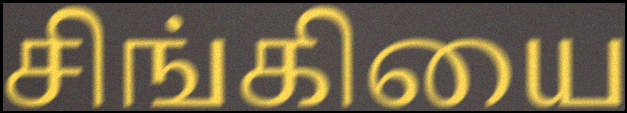
சிங்கியை